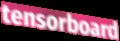
tensorboard